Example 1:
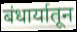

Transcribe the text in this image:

बंधार्यातून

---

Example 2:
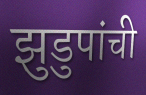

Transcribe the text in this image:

झुडुपांची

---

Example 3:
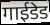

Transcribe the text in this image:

गाईडेड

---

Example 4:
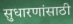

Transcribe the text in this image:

सुधारणांसाठी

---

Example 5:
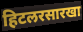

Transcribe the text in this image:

हिटलरसारखा